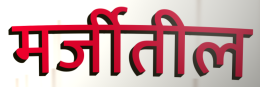
मर्जीतील